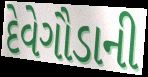
દેવેગૌડાની